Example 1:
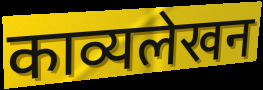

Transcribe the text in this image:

काव्यलेखन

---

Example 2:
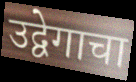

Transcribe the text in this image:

उद्वेगाचा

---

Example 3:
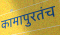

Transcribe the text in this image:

कामापुरतंच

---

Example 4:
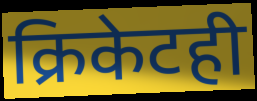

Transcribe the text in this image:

क्रिकेटही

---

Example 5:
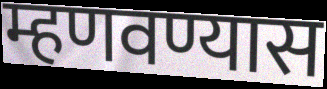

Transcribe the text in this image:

म्हणवण्यास